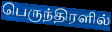
பெருந்திரளில்